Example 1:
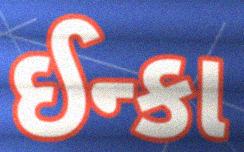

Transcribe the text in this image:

ઈન્કા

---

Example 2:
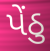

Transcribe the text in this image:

પેંઠુ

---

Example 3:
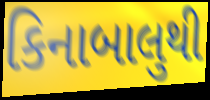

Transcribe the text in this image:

કિનાબાલુથી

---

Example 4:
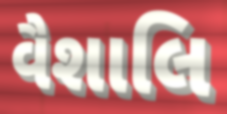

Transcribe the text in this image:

વૈશાલિ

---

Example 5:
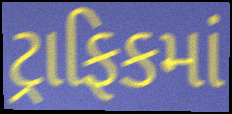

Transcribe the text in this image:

ટ્રાફિકમાં